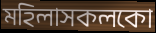
মহিলাসকলকো